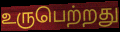
உருபெற்றது